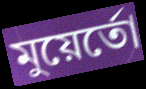
মুয়ের্তো